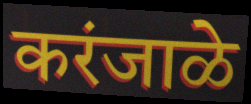
करंजाळे